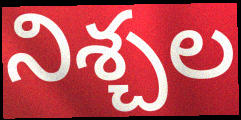
నిశ్చల